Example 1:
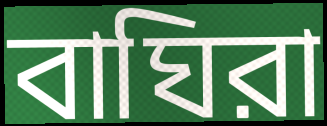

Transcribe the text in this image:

বাঘিরা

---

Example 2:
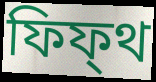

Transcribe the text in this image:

ফিফ্থ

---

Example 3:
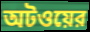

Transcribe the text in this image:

অটওয়ের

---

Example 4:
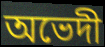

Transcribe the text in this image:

অভেদী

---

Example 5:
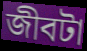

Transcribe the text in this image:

জীবটা